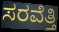
ಸರವೆತ್ತಿ